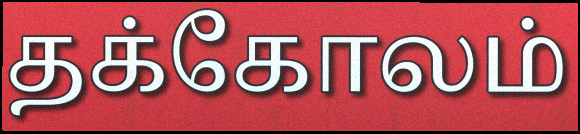
தக்கோலம்